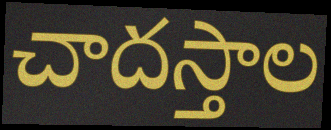
చాదస్తాల